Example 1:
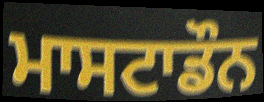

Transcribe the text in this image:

ਮਾਸਟਾਡੌਨ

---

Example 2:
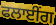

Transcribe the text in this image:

ਫਲਾਈਂਗ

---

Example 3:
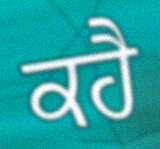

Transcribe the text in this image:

ਕਹੈ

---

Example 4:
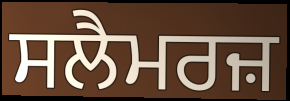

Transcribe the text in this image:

ਸਲੈਮਰਜ਼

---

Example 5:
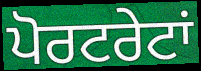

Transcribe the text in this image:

ਪੋਰਟਰੇਟਾਂ